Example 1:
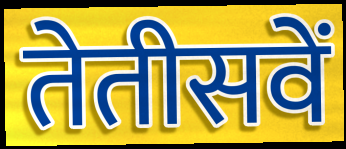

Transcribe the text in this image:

तेतीसवें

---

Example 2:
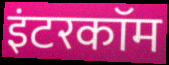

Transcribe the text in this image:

इंटरकॉम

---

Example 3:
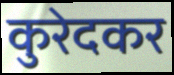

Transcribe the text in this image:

कुरेदकर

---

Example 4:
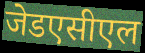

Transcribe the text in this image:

जेडएसीएल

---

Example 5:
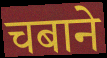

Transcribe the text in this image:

चबाने